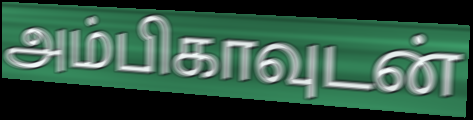
அம்பிகாவுடன்